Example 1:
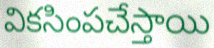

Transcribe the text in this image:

వికసింపచేస్తాయి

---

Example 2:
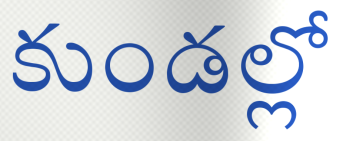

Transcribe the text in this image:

కుండల్లో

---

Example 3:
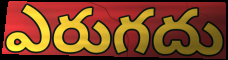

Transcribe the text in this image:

ఎరుగదు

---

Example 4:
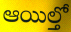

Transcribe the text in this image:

ఆయిల్తో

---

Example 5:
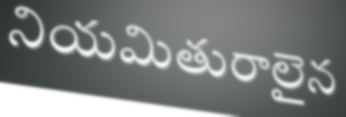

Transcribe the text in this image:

నియమితురాలైన